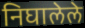
निघालेले